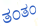
ತಂತಂ